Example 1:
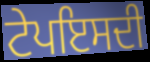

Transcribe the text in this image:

ਟੇਪਇਸਦੀ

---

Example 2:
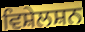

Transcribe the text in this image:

ਵਿਸ਼ੇਲਸ਼ਨ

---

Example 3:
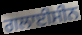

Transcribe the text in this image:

ਗਲਾਈਸੀਨ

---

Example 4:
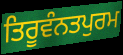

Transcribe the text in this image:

ਤਿਰੂਵੰਨਤਪੁਰਮ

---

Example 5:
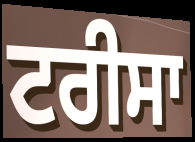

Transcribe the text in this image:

ਟਰੀਸਾ